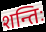
शन्तिः